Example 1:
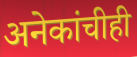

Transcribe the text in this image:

अनेकांचीही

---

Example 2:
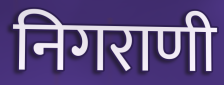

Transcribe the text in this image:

निगराणी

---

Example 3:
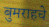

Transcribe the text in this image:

बुमराहचे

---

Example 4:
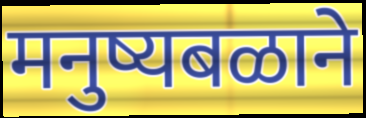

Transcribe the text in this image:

मनुष्यबळाने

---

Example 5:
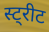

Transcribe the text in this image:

स्ट्रीट